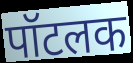
पॉटलक